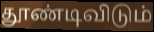
தூண்டிவிடும்